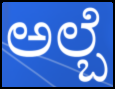
ಅಲ್ಬೆ